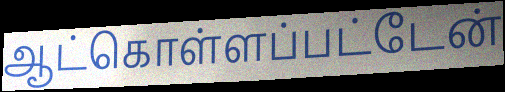
ஆட்கொள்ளப்பட்டேன்